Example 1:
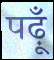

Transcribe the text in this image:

पढ़ूँ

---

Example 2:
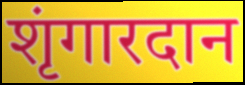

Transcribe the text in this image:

शृंगारदान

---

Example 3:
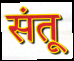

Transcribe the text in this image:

संतू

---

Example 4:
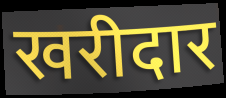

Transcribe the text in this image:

खरीदार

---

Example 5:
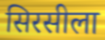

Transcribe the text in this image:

सिरसीला